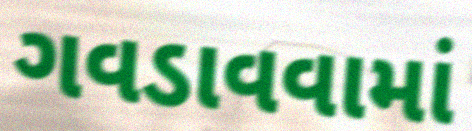
ગવડાવવામાં